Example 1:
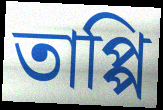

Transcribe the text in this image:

তাপ্পি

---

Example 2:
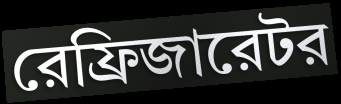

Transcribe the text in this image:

রেফ্রিজারেটর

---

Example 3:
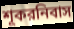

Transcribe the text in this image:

শূকরনিবাস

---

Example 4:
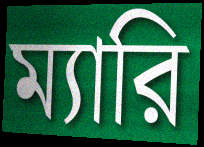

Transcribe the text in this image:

ম্যারি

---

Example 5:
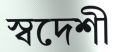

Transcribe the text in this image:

স্বদেশী